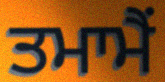
ਤਮਾਮੈਂ